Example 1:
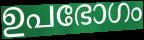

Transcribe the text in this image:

ഉപഭോഗം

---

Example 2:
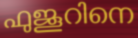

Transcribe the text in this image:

ഫുജൂറിനെ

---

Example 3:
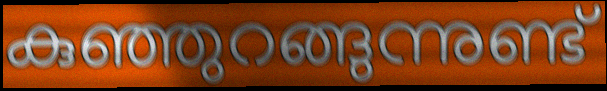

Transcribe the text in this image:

കുഞ്ഞുറങ്ങുന്നുണ്ട്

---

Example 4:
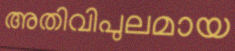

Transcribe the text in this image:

അതിവിപുലമായ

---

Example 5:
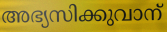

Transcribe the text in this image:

അഭ്യസിക്കുവാന്